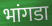
भांगडा